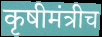
कृषीमंत्रीच